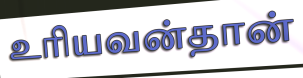
உரியவன்தான்